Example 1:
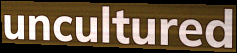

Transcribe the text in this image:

uncultured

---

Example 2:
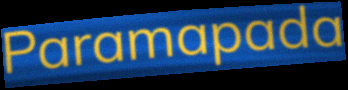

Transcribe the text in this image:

Paramapada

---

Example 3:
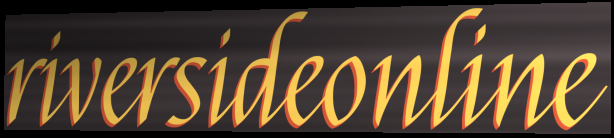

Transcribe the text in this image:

riversideonline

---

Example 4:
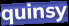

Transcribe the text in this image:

quinsy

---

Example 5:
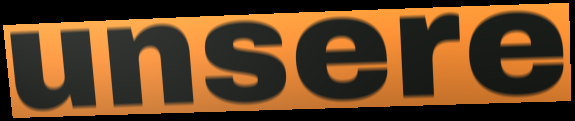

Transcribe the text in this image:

unsere